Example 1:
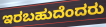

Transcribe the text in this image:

ಇರಬಹುದೆಂದರು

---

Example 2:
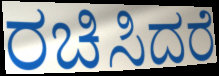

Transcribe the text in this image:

ರಚಿಸಿದರೆ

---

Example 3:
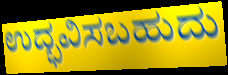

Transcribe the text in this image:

ಉದ್ಭವಿಸಬಹುದು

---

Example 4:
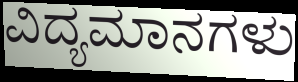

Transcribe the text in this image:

ವಿದ್ಯಮಾನಗಳು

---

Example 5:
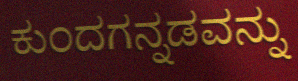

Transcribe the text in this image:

ಕುಂದಗನ್ನಡವನ್ನು